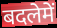
बदलेमें